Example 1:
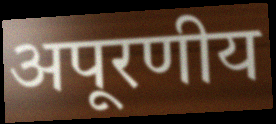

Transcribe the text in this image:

अपूरणीय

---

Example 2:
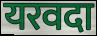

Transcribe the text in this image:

यरवदा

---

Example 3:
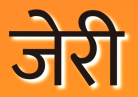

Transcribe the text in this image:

जेरी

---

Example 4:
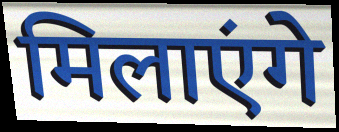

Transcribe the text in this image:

मिलाएंगे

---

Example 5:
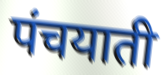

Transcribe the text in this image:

पंचयाती